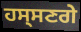
ਹਸ੍ਸਣਗੇ